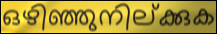
ഒഴിഞ്ഞുനില്ക്കുക